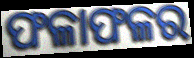
ଫଳାଫଳର